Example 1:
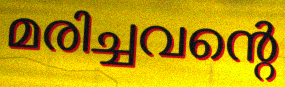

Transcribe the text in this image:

മരിച്ചവന്റെ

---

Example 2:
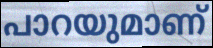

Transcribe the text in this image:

പാറയുമാണ്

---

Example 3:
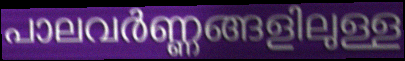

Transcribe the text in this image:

പാലവർണ്ണങ്ങളിലുള്ള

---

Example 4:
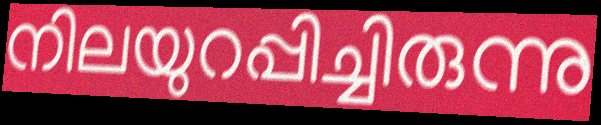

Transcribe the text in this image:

നിലയുറപ്പിച്ചിരുന്നു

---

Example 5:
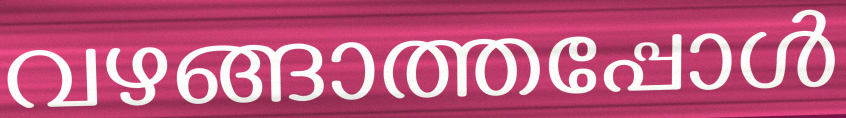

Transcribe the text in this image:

വഴങ്ങാത്തപ്പോൾ